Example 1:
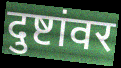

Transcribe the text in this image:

दुष्टांवर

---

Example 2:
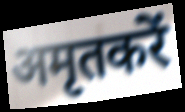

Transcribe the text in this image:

अमृतकरें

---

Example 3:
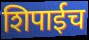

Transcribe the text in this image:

शिपाईच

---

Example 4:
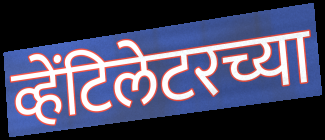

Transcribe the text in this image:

व्हेंटिलेटरच्या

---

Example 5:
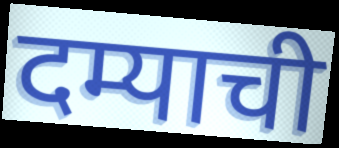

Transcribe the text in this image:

दम्याची